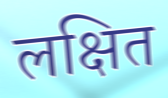
लक्षित